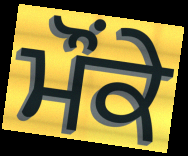
ਮੌੰਕੇ